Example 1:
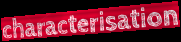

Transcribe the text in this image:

characterisation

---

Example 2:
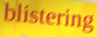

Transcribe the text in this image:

blistering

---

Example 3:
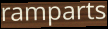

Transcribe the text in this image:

ramparts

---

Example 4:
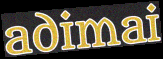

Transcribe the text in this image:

adimai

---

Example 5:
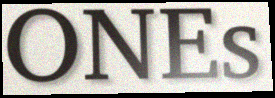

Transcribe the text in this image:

ONEs